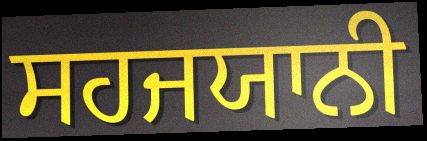
ਸਹਜਯਾਨੀ